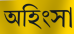
অহিংসা